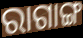
ରାଗାଙ୍ଗ